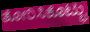
ತೋರಿಸಿಕೊಟ್ಟು